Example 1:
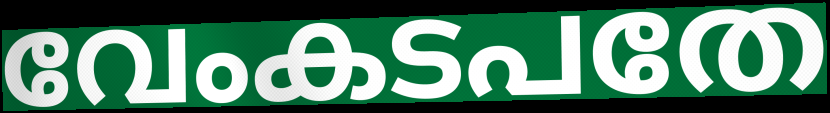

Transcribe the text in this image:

വേംകടപതേ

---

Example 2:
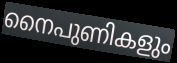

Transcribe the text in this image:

നൈപുണികളും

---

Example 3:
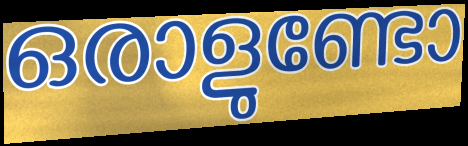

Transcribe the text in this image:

ഒരാളുണ്ടോ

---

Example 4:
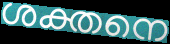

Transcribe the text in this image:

ശക്തനെ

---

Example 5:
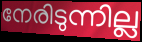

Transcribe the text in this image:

നേരിടുന്നില്ല